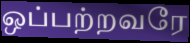
ஒப்பற்றவரே